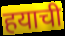
हयाची